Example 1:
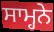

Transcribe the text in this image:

ਸਾਮ੍ਹਨੇ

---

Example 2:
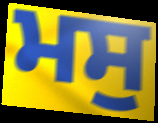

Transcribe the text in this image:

ਮਸੁ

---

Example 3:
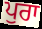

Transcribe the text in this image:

ਪੁਰਾ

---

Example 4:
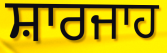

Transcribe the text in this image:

ਸ਼ਾਰਜਾਹ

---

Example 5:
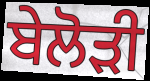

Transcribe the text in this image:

ਬੇਲੋੜੀ